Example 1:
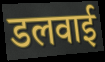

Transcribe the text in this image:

डलवाई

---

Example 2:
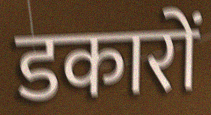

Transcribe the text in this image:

डकारों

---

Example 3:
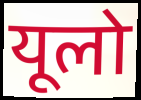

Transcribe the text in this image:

यूलो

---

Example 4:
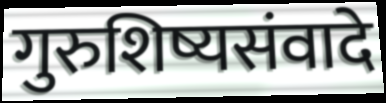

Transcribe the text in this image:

गुरुशिष्यसंवादे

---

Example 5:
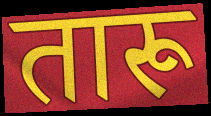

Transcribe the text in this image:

तारू